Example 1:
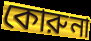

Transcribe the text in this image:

কোরুনা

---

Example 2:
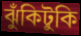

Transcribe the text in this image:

ঝুঁকিটুকি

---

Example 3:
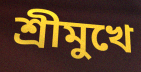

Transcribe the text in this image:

শ্রীমুখে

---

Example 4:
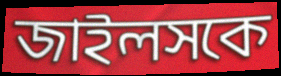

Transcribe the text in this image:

জাইলসকে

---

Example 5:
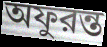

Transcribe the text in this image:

অফুরন্ত